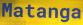
Matanga